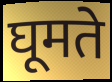
घूमते